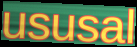
ususal